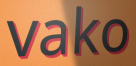
vako